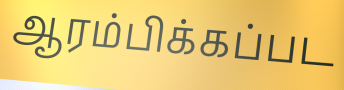
ஆரம்பிக்கப்பட